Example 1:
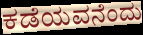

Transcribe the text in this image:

ಕಡೆಯವನೆಂದು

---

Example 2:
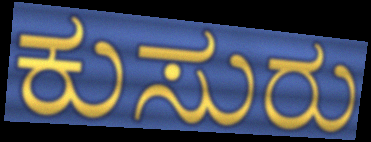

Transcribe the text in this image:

ಕುಸುರು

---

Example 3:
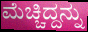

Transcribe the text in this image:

ಮೆಚ್ಚಿದ್ದನ್ನು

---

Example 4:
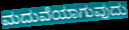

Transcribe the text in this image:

ಮದುವೆಯಾಗುವುದು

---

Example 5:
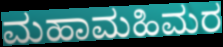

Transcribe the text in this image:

ಮಹಾಮಹಿಮರ